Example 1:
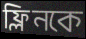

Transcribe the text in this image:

ফ্লিনকে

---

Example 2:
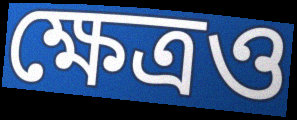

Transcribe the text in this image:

ক্ষেত্রও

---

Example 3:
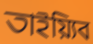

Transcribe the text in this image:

তাইয়্যিব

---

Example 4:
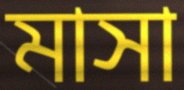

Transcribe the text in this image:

মাসা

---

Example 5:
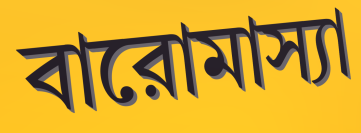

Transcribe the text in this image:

বারোমাস্যা